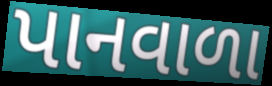
પાનવાળા